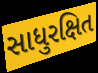
સાધુરક્ષિત